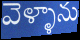
వెళ్ళాను